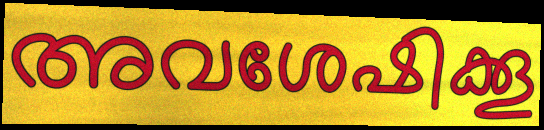
അവശേഷിക്കൂ